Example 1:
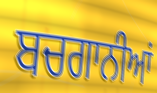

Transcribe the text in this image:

ਬਚਗਾਨੀਆਂ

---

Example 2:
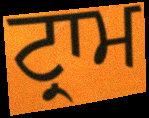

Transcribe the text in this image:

ਟ੍ਰਾਮ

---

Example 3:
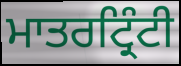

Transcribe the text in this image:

ਮਾਤਰਟ੍ਰਿੰਟੀ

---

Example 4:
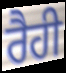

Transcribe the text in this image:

ਰੈਹੀ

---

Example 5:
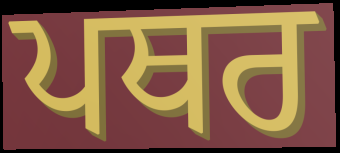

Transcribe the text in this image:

ਪਥਰ